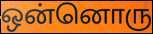
ஒன்னொரு